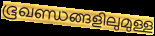
ഭൂഖണ്ഡങ്ങളിലുമുള്ള